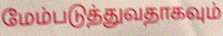
மேம்படுத்துவதாகவும்